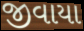
જીવાયા